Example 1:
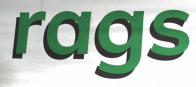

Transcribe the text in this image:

rags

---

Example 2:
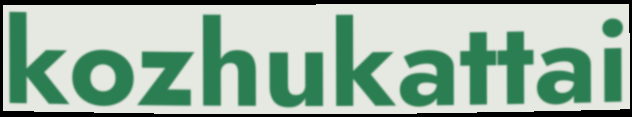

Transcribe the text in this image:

kozhukattai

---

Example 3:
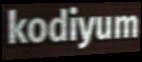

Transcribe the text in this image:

kodiyum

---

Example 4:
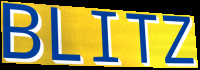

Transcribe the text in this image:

BLITZ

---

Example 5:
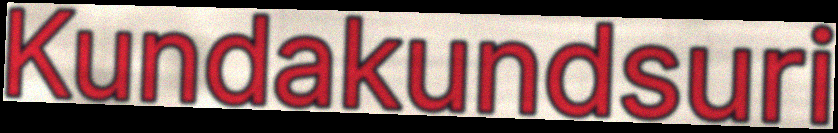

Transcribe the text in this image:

Kundakundsuri